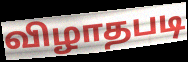
விழாதபடி